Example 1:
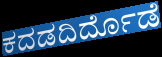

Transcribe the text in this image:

ಕದಡದಿರ್ದೊಡೆ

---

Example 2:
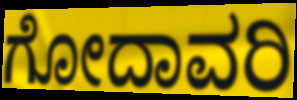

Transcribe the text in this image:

ಗೋದಾವರಿ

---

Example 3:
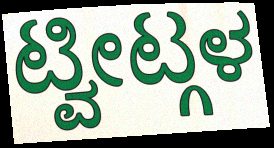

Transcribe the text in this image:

ಟ್ವೀಟ್ಗಳ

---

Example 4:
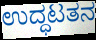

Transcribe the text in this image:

ಉದ್ಧಟತನ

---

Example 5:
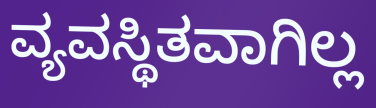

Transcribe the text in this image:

ವ್ಯವಸ್ಥಿತವಾಗಿಲ್ಲ